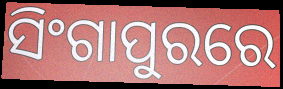
ସିଂଗାପୁରରେ